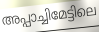
അപ്പാച്ചിമേട്ടിലെ